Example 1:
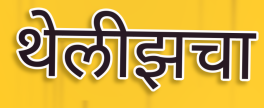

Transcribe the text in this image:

थेलीझचा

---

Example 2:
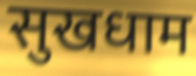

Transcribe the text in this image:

सुखधाम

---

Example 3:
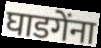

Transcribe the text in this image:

घाडगेंना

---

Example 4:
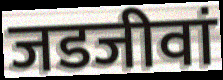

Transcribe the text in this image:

जडजीवां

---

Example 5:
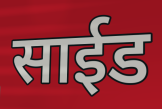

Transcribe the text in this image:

साईड